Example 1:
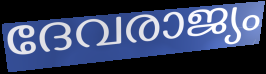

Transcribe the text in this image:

ദേവരാജ്യം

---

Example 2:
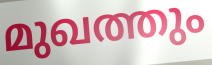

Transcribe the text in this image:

മുഖത്തും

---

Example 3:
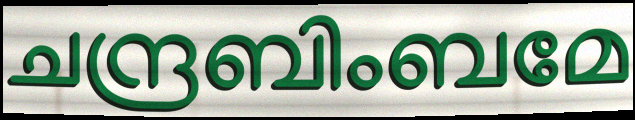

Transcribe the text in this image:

ചന്ദ്രബിംബമേ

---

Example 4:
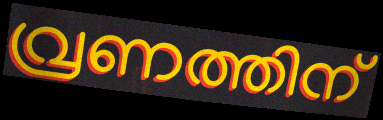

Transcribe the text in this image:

വ്രണത്തിന്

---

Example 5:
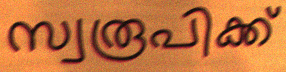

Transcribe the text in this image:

സ്വരൂപിക്ക്